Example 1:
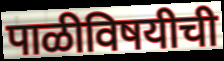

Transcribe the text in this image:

पाळीविषयीची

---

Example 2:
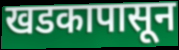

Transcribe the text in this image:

खडकापासून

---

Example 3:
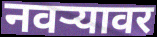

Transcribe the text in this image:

नवर्‍यावर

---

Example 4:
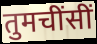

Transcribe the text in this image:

तुमचींसीं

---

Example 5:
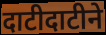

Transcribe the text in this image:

दाटीदाटीने